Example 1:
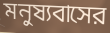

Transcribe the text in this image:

মনুষ্যবাসের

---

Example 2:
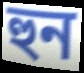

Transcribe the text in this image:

হুন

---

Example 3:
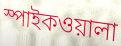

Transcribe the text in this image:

স্পাইকওয়ালা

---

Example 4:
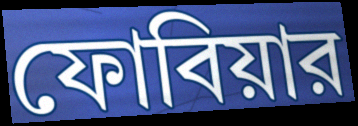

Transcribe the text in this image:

ফোবিয়ার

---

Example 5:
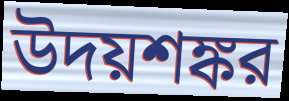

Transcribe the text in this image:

উদয়শঙ্কর